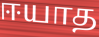
ஈயாத